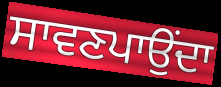
ਸਾਵਣਪਾਉਂਦਾ